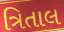
ત્રિતાલ